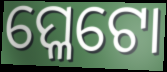
ପ୍ଳେଟୋ